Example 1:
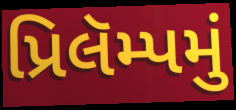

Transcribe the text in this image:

પ્રિલૅમ્પમું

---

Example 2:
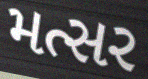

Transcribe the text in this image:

મત્સર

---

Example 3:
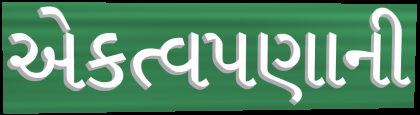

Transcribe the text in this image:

એકત્વપણાની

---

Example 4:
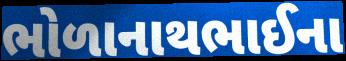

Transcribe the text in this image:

ભોળાનાથભાઈના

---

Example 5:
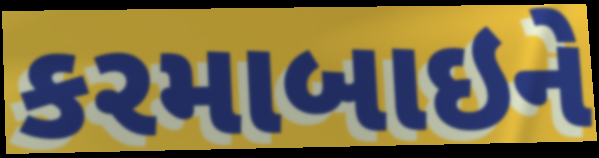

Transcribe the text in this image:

કરમાબાઇને